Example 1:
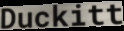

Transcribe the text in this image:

Duckitt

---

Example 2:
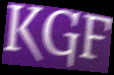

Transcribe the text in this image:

KGF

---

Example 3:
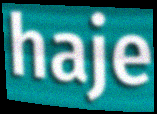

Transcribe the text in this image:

haje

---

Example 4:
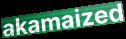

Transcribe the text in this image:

akamaized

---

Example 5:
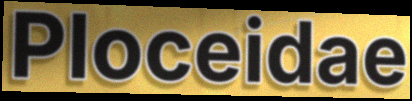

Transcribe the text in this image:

Ploceidae